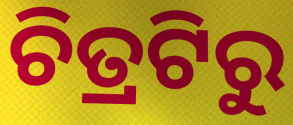
ଚିତ୍ରଟିରୁ